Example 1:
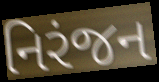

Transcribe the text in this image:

નિરંજન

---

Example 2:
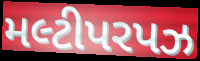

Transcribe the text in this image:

મલ્ટીપરપઝ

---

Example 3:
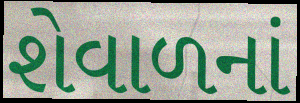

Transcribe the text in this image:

શેવાળનાં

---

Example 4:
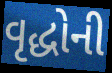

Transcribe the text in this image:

વૃદ્ધોની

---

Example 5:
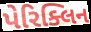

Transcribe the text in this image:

પેરિક્લિન